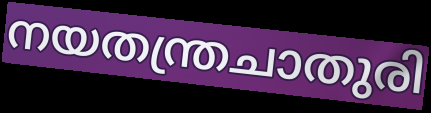
നയതന്ത്രചാതുരി